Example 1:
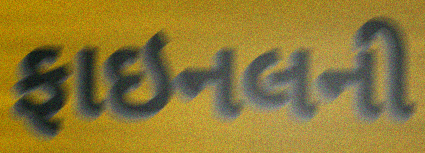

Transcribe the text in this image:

ફાઇનલની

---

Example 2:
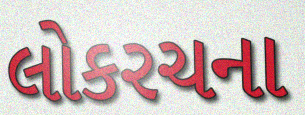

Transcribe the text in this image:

લોકરચના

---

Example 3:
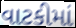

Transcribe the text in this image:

વાટકીમાં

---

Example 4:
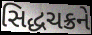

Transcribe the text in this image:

સિદ્ધચક્રને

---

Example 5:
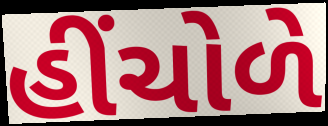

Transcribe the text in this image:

હીંચોળે